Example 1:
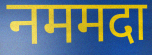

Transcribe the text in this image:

नममदा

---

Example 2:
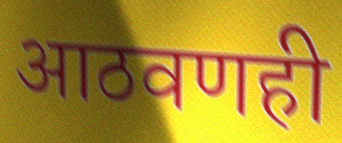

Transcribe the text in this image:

आठवणही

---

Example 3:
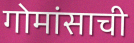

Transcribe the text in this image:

गोमांसाची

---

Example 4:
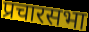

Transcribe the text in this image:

प्रचारसभा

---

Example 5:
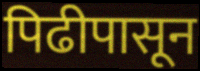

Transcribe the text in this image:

पिढीपासून